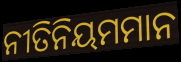
ନୀତିନିୟମମାନ